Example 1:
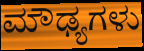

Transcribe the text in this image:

ಮೌಢ್ಯಗಳು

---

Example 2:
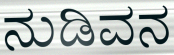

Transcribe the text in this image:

ನುಡಿವನ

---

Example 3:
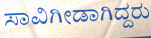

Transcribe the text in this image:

ಸಾವಿಗೀಡಾಗಿದ್ದರು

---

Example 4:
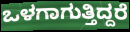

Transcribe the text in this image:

ಒಳಗಾಗುತ್ತಿದ್ದರೆ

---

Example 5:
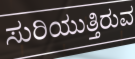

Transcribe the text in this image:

ಸುರಿಯುತ್ತಿರುವ